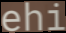
ehi